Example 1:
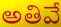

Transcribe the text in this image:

అతివే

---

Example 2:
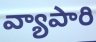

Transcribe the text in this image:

వ్యాపారి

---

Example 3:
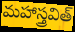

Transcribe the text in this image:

మహాస్త్రవిత్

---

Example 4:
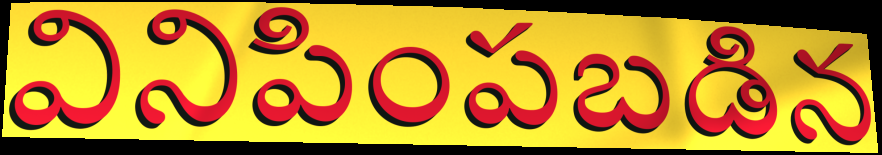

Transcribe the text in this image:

వినిపింపబడిన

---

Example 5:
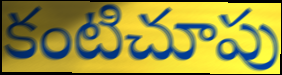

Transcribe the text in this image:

కంటిచూపు